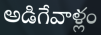
అడిగేవాళ్లం